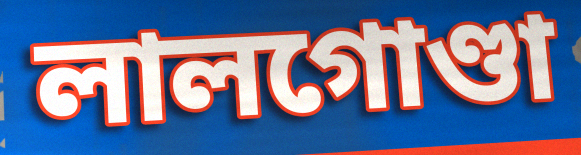
লালগোণ্ডা